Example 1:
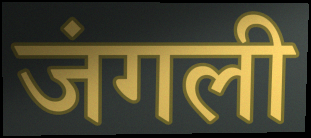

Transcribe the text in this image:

जंगली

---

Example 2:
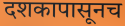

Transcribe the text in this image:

दशकापासूनच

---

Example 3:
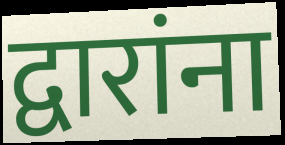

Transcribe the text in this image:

द्वारांना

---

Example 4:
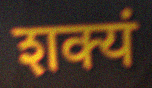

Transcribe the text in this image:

शक्यं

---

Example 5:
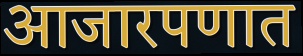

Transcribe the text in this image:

आजारपणात